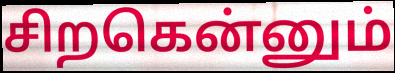
சிறகென்னும்